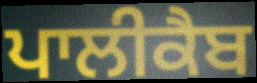
ਪਾਲੀਕੈਬ